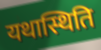
यथास्थिति